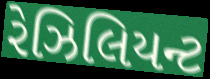
રેઝિલિયન્ટ